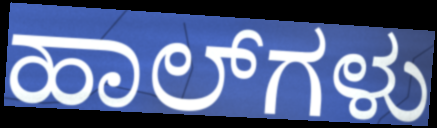
ಹಾಲ್‌ಗಳು